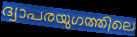
ദ്വാപരയുഗത്തിലെ